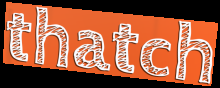
thatch